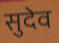
सुदेव